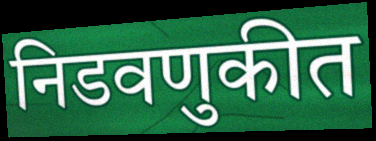
निडवणुकीत